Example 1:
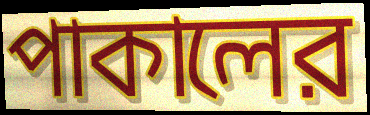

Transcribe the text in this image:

পাকালের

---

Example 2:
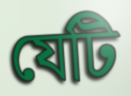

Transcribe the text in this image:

যেটি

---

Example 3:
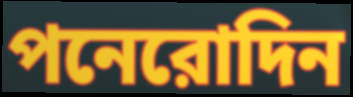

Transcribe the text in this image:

পনেরোদিন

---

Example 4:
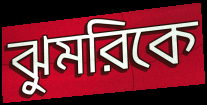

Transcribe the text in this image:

ঝুমরিকে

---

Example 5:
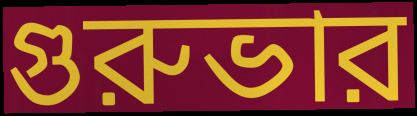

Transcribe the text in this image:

গুরুভার